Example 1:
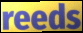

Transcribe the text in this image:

reeds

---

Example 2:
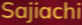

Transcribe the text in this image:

Sajiachi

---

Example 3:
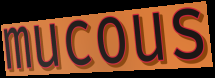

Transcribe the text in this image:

mucous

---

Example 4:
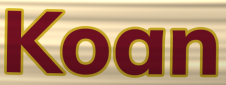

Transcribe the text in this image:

Koan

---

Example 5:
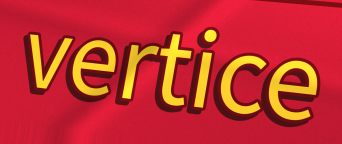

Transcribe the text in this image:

vertice